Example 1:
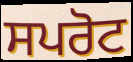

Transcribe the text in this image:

ਸਪਰੋਟ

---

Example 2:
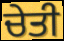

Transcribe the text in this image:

ਚੇਤੀ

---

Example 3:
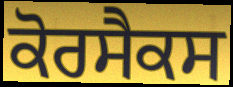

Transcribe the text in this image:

ਕੋਰਸੈਕਸ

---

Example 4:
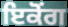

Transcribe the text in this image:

ਇਕੋਂਗ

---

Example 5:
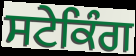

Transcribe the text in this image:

ਸਟੇਕਿੰਗ